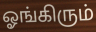
ஓங்கிரும்